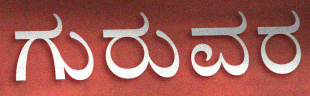
ಗುರುವರ